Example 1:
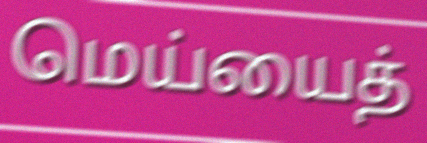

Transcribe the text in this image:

மெய்யைத்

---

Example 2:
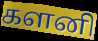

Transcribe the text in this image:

களனி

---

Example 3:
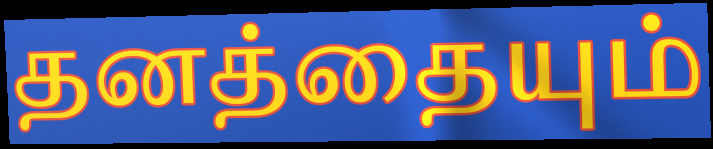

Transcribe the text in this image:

தனத்தையும்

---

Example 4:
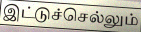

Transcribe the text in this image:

இட்டுச்செல்லும்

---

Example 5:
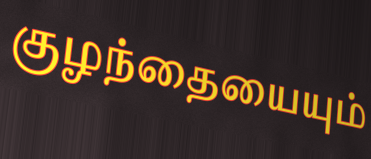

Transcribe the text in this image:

குழந்தையையும்